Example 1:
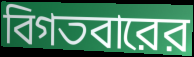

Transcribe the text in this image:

বিগতবারের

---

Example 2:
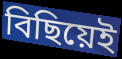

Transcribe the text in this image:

বিছিয়েই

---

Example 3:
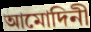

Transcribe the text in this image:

আমোদিনী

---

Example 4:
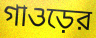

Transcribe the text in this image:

গাওড়ের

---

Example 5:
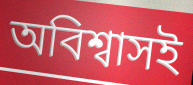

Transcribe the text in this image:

অবিশ্বাসই